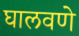
घालवणे